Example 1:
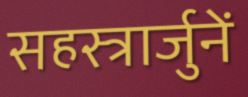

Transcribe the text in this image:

सहस्त्रार्जुनें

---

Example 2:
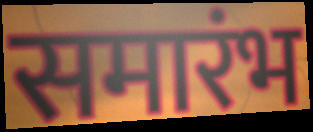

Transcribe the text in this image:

समारंभ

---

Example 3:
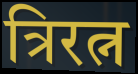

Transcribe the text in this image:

त्रिरत्न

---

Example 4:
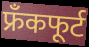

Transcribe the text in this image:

फ्रँकफूर्ट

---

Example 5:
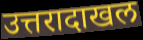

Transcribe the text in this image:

उत्तरादाखल